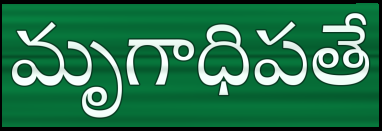
మృగాధిపతే